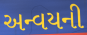
અન્વયની